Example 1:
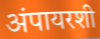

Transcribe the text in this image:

अंपायरशी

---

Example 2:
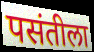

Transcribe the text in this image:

पसंतीला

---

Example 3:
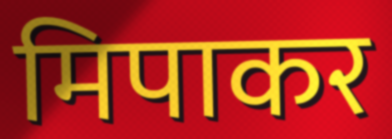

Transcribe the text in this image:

मिपाकर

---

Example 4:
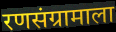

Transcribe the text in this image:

रणसंग्रामाला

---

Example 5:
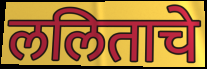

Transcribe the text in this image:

ललिताचे